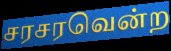
சரசரவென்ற